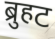
ब्रुहट